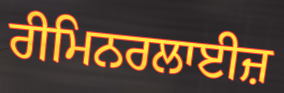
ਰੀਮਿਨਰਲਾਈਜ਼